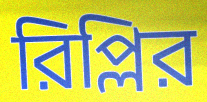
রিপ্লির